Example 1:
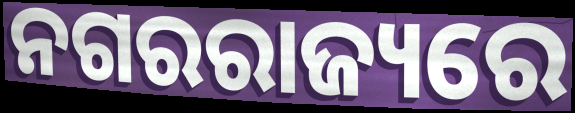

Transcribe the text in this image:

ନଗରରାଜ୍ୟରେ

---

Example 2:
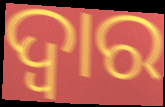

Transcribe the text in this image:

ଦ୍ୱାର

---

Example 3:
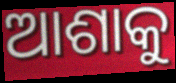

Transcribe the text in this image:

ଆଶାକୁ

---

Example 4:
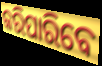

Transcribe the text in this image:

କରିପାରିବେ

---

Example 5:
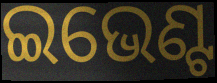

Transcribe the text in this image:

ଇଭେଣ୍ଟ